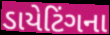
ડાયેટિંગના